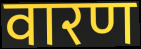
वारण